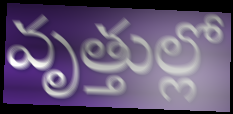
వృత్తుల్లో